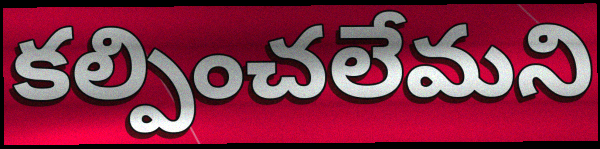
కల్పించలేమని